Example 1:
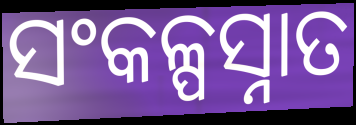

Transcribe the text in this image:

ସଂକଳ୍ପସ୍ନାତ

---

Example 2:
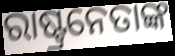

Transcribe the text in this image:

ରାଷ୍ଟ୍ରନେତାଙ୍କ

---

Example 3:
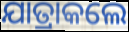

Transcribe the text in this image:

ଯାତ୍ରାକଲେ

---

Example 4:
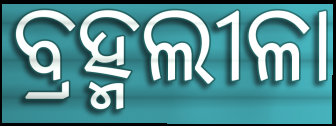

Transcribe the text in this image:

ବ୍ରହ୍ମଲୀଳା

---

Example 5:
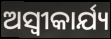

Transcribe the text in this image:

ଅସ୍ୱୀକାର୍ଯ୍ୟ